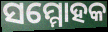
ସମ୍ମୋହକ